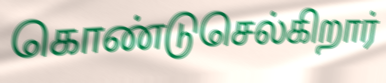
கொண்டுசெல்கிறார்